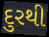
દુરથી